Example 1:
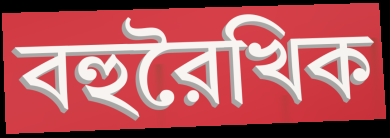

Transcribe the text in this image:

বহুরৈখিক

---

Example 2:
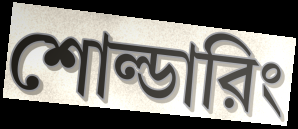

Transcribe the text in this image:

শোল্ডারিং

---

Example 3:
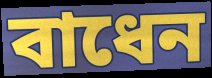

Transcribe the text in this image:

বাধেন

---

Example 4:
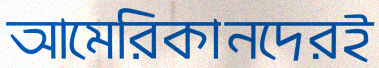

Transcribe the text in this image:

আমেরিকানদেরই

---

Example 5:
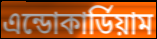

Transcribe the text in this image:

এন্ডোকার্ডিয়াম